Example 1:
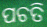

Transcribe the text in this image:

ପଚତି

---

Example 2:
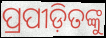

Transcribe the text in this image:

ପ୍ରପୀଡ଼ିତଙ୍କୁ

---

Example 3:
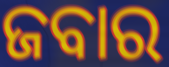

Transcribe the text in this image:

ଜବାର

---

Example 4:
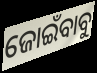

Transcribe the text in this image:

ଜୋଇଁବାବୁ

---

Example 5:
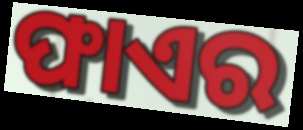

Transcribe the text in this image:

ଫାଏର